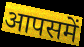
आपसमें